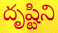
దృష్టిని